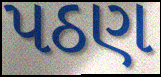
પઠણ